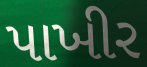
પાખીર